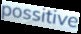
possitive